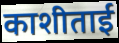
काशीताई